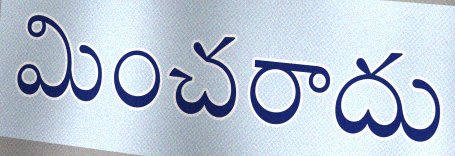
మించరాదు